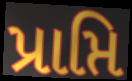
પ્રાપ્તિ